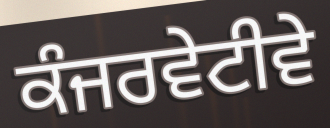
ਕੰਜਰਵੇਟੀਵੇ